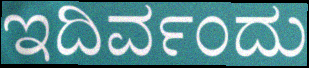
ಇದಿರ್ವಂದು